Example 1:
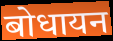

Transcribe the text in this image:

बोधायन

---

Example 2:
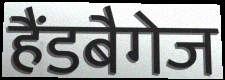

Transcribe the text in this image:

हैंडबैगेज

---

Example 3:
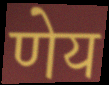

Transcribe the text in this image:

णेय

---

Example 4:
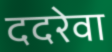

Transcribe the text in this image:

ददरेवा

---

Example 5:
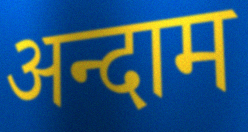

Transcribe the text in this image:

अन्दाम